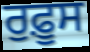
ਰੁਫ਼ੂਸ